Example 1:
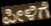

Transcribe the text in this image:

ಪೀಳಿಗೆ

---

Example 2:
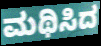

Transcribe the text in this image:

ಮಥಿಸಿದ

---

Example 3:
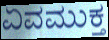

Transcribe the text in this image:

ಏವಮುಕ್ತ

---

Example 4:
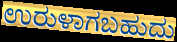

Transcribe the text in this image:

ಉರುಳಾಗಬಹುದು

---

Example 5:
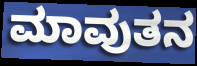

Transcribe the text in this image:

ಮಾವುತನ